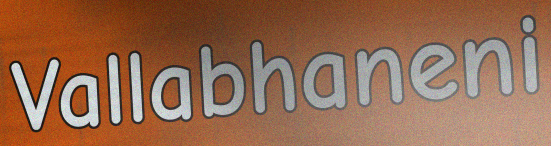
Vallabhaneni